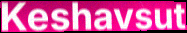
Keshavsut